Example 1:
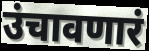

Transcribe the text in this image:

उंचावणारं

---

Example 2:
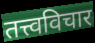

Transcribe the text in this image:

तत्त्वविचार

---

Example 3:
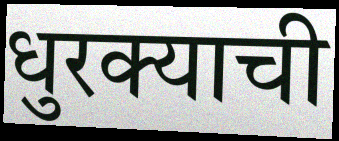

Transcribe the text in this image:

धुरक्याची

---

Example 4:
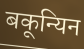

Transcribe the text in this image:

बकून्यिन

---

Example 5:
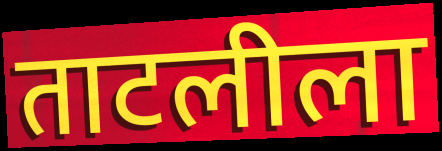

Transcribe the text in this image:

ताटलीला